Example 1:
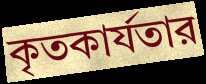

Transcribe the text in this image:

কৃতকার্যতার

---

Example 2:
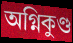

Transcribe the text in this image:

অগ্নিকুণ্ড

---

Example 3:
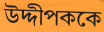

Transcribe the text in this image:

উদ্দীপককে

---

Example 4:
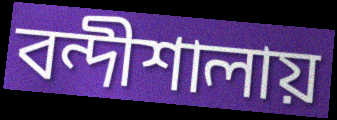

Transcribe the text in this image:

বন্দীশালায়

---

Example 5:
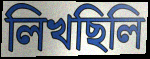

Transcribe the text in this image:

লিখছিলি